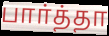
பார்த்தா